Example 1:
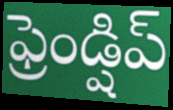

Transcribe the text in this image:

ఫ్రెండ్షిప్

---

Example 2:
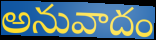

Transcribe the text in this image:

అనువాదం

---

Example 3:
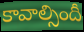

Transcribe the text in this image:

కావాల్సిందీ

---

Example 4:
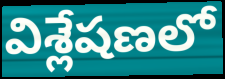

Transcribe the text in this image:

విశ్లేషణలో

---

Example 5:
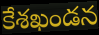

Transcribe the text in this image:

కేశఖండన